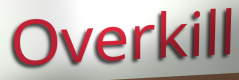
Overkill